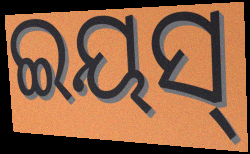
ଇୟସ୍